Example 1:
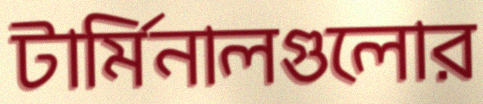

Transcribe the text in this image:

টার্মিনালগুলোর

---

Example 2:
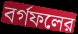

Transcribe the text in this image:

বর্গফলের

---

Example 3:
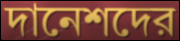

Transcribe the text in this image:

দানেশদের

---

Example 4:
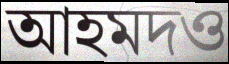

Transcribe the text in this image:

আহমদও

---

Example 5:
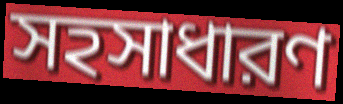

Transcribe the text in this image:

সহসাধারণ